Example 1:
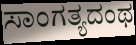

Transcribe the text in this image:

ಸಾಂಗತ್ಯದಂಥ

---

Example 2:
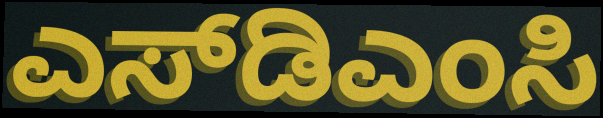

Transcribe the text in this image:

ಎಸ್‌ಡಿಎಂಸಿ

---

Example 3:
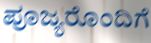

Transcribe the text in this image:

ಪೂಜ್ಯರೊಂದಿಗೆ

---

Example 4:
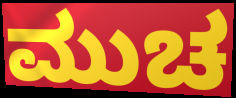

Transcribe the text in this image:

ಮುಚ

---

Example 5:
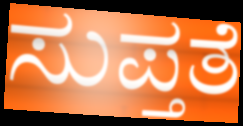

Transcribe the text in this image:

ಸುಪ್ತತೆ